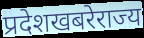
प्रदेशखबरेराज्य